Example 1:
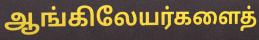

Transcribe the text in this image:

ஆங்கிலேயர்களைத்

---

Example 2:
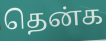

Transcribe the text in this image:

தென்க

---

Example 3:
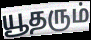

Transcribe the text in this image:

யூதரும்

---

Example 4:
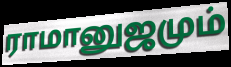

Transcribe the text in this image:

ராமானுஜமும்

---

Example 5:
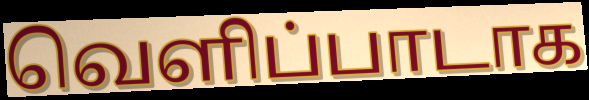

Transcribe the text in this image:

வெளிப்பாடாக